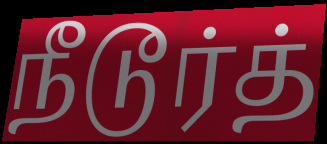
நீடூர்த்